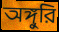
অঙ্গুরি